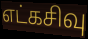
எட்கசிவு